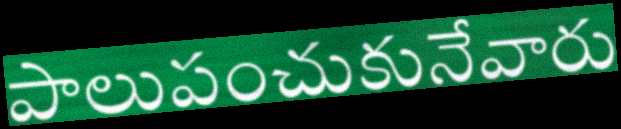
పాలుపంచుకునేవారు